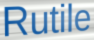
Rutile